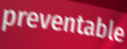
preventable